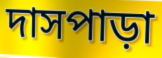
দাসপাড়া